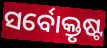
ସର୍ବୋକ୍ତୃଷ୍ଟ